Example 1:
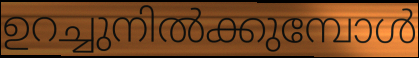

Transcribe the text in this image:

ഉറച്ചുനിൽക്കുമ്പോൾ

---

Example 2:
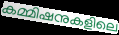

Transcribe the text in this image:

കമ്മിഷനുകളിലെ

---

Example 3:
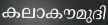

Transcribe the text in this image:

കലാകൗമുദി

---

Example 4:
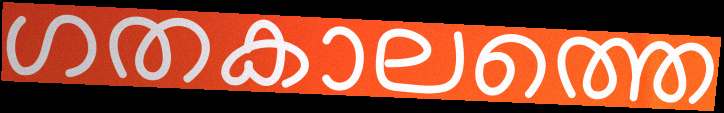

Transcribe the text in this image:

ഗതകാലത്തെ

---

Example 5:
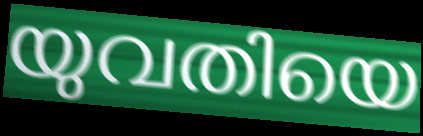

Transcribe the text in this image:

യുവതിയെ